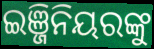
ଇଞ୍ଜିନିୟରଙ୍କୁ